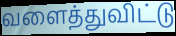
வளைத்துவிட்டு